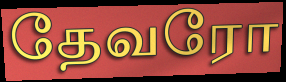
தேவரோ